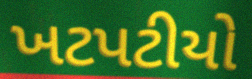
ખટપટીયો